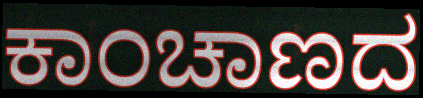
ಕಾಂಚಾಣದ